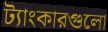
ট্যাংকারগুলো